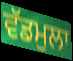
ਵੱਡਮੁਲਾ